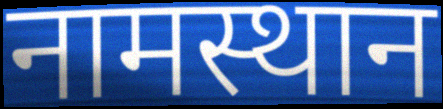
नामस्थान